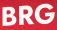
BRG